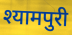
श्यामपुरी